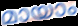
മായാം